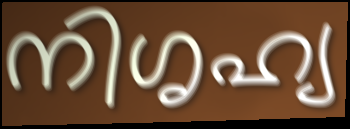
നിഗൃഹ്യ